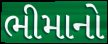
ભીમાનો